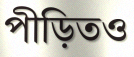
পীড়িতও